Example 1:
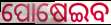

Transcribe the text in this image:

ପୋଷେଇବ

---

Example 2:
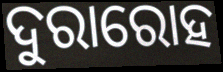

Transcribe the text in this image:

ଦୁରାରୋହ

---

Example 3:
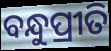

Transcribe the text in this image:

ବନ୍ଧୁପ୍ରୀତି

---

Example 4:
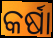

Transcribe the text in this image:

କର୍ଷା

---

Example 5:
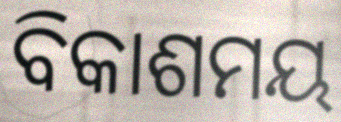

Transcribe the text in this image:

ବିକାଶମୟ